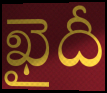
ఖైదీ